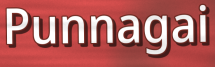
Punnagai